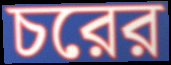
চরের